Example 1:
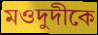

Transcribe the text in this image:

মওদুদীকে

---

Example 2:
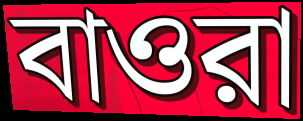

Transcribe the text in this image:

বাওরা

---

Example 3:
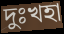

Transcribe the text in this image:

দুঃখহা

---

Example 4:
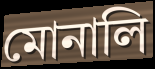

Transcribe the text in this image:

মোনালি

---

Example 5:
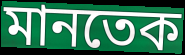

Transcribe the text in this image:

মানতেক